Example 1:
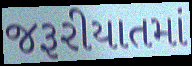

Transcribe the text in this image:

જરૂરીયાતમાં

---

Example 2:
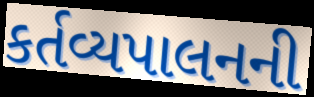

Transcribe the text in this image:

કર્તવ્યપાલનની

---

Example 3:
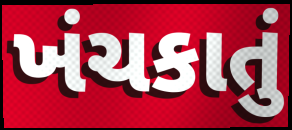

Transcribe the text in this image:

ખંચકાતું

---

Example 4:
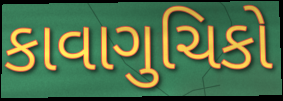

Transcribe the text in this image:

કાવાગુચિકો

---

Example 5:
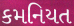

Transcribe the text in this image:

કમનિયત